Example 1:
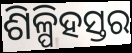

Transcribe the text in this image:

ଶିଳ୍ପିହସ୍ତର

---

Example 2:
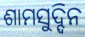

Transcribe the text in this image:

ଶାମସୁଦ୍ଦିନ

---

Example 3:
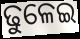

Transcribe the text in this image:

ଢୁଳେଇ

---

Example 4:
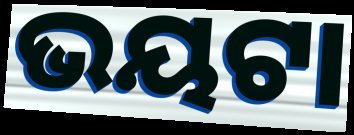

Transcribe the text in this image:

ଭୟଟା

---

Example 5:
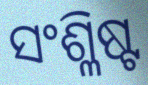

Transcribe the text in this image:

ସଂଶ୍ଳିଷ୍ଟ